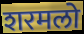
शरमलो